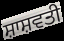
ਸ਼ਾਸ਼ਵਤੀ